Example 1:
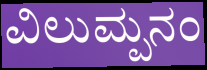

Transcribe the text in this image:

ವಿಲುಮ್ಪನಂ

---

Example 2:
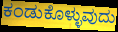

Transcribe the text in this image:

ಕಂಡುಕೊಳ್ಳುವುದು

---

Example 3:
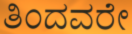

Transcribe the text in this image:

ತಿಂದವರೇ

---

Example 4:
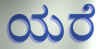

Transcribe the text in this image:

ಯರೆ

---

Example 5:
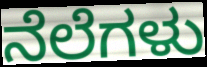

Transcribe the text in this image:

ನೆಲೆಗಳು